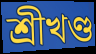
শ্রীখণ্ড